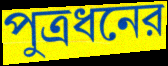
পুত্রধনের